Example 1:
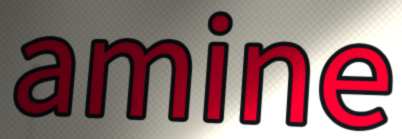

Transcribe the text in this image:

amine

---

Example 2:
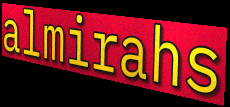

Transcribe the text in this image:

almirahs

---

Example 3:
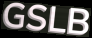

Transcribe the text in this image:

GSLB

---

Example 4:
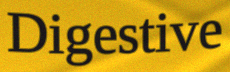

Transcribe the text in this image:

Digestive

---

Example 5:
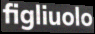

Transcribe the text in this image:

figliuolo